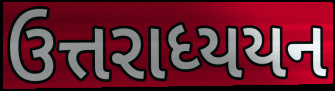
ઉત્તરાધ્યયન